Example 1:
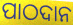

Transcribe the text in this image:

ପାଠଦାନ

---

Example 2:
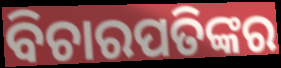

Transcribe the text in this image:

ବିଚାରପତିଙ୍କର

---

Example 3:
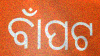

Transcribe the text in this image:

ବାଁପଟ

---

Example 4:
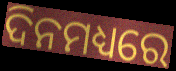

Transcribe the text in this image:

ଦିନମଧ୍ୟରେ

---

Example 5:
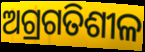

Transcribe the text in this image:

ଅଗ୍ରଗତିଶୀଳ